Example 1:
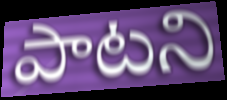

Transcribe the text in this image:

పాటని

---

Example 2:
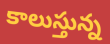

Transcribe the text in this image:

కాలుస్తున్న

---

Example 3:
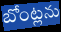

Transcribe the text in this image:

బోంట్లను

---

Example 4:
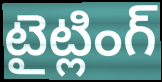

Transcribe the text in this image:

టైట్లింగ్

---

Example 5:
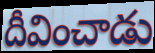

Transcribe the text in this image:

దీవించాడు